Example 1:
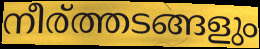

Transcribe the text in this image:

നീര്ത്തടങ്ങളും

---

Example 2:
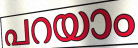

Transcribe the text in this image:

പറയാം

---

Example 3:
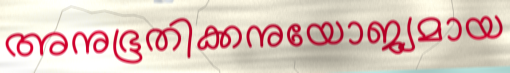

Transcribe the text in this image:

അനുഭൂതിക്കനുയോജ്യമായ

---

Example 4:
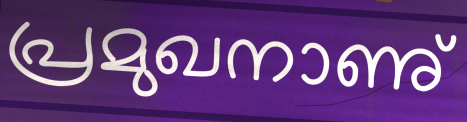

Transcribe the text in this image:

പ്രമുഖനാണു്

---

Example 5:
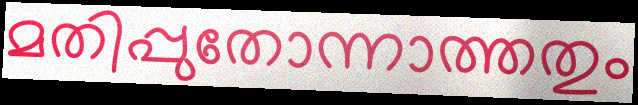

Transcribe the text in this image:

മതിപ്പുതോന്നാത്തതും